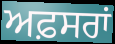
ਅਫ਼ਸਰਾਂ